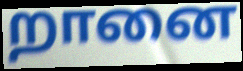
றானை